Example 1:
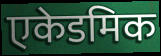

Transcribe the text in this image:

एकेडमिक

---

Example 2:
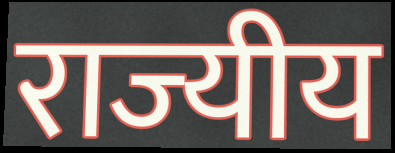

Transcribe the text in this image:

राज्‍यीय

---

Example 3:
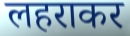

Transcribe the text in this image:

लहराकर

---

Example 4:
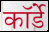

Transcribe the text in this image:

कॉर्डे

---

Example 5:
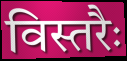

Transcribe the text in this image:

विस्तरैः